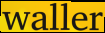
waller